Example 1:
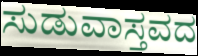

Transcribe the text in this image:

ಸುಡುವಾಸ್ತವದ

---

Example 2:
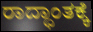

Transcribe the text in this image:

ರಾದ್ಧಾಂತಕ್ಕೆ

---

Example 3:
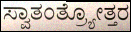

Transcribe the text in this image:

ಸ್ವಾತಂತ್ರ್ಯೋತ್ತರ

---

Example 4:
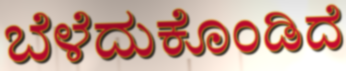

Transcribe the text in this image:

ಬೆಳೆದುಕೊಂಡಿದೆ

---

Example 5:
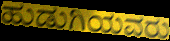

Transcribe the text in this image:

ಹುಡುಗಿಯವರು